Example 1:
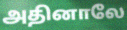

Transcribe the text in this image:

அதினாலே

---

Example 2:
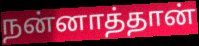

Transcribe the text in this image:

நன்னாத்தான்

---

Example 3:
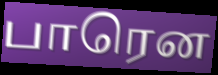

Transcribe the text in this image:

பாரென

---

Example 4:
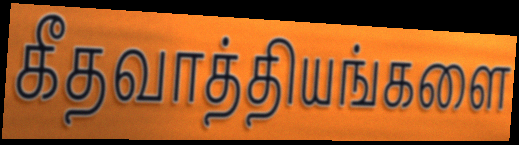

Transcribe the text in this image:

கீதவாத்தியங்களை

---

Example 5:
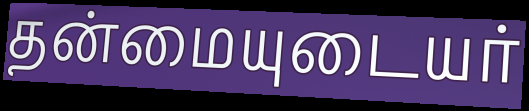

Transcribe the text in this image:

தன்மையுடையர்